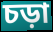
চড়া